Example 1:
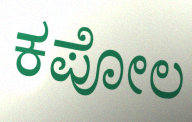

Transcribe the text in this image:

ಕಪೋಲ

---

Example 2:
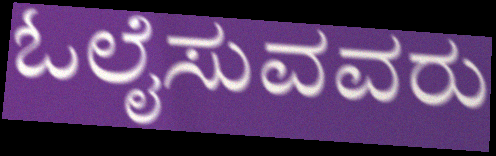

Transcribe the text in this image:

ಓಲೈಸುವವರು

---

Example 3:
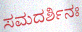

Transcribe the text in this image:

ಸಮದರ್ಶಿನಃ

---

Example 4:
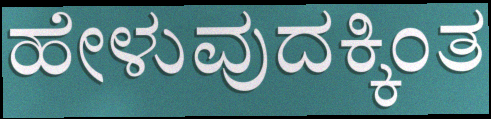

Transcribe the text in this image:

ಹೇಳುವುದಕ್ಕಿಂತ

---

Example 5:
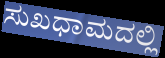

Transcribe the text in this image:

ಸುಖಧಾಮದಲ್ಲಿ